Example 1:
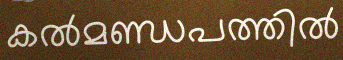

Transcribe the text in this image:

കൽമണ്ഡപത്തിൽ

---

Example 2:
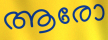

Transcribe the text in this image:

ആരോ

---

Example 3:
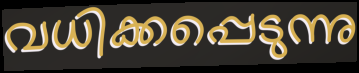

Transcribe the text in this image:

വധിക്കപ്പെടുന്നു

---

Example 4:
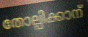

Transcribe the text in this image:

തോല്പിക്കാന്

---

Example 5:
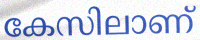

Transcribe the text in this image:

കേസിലാണ്